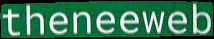
theneeweb